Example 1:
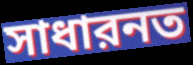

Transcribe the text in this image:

সাধারনত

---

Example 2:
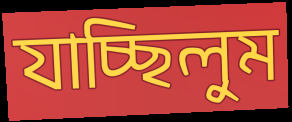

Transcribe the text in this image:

যাচ্ছিলুম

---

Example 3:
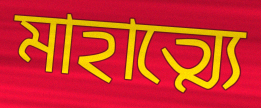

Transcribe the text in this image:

মাহাত্ম্যে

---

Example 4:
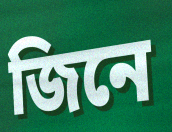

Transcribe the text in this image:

জিনে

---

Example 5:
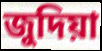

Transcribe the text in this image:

জুদিয়া